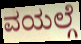
ವಯಲ್ಗೆ